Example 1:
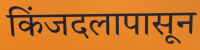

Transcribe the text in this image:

किंजदलापासून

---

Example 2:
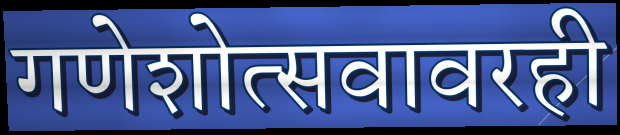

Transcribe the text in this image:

गणेशोत्सवावरही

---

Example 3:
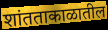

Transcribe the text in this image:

शांतताकाळातील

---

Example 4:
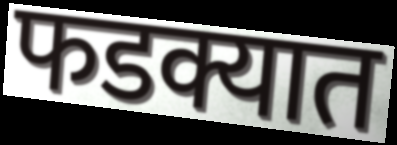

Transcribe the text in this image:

फडक्यात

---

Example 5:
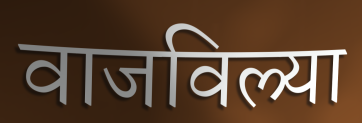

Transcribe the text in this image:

वाजविल्या